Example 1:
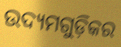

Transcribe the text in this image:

ଉଦ୍ୟମଗୁଡ଼ିକର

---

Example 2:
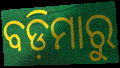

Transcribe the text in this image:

ବଡ଼ିମାରୁ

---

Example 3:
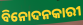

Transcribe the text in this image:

ବିନୋଦନକାରୀ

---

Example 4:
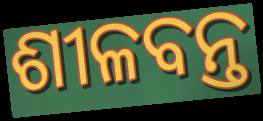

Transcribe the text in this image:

ଶୀଳବନ୍ତ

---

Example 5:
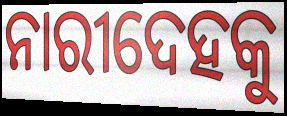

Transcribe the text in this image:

ନାରୀଦେହକୁ